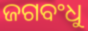
ଜଗବଂଧୁ